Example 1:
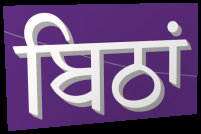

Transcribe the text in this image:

ਬਿਠਾਂ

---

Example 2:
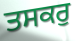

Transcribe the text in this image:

ਤਸਕਰੁ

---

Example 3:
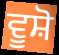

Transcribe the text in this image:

ਵੂਸ਼ੋ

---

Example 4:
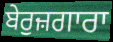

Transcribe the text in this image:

ਬੇਰੁਜ਼ਗਾਰਾ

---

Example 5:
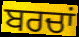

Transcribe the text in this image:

ਬਰਚਾਂ